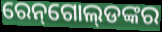
ରେନ୍‌ଗୋଲ୍‌ଡଙ୍କର